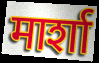
मार्शा